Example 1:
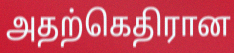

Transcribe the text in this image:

அதற்கெதிரான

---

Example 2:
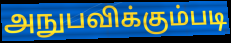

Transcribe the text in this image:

அநுபவிக்கும்படி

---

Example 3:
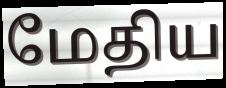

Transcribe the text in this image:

மேதிய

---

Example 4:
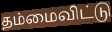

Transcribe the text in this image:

தம்மைவிட்டு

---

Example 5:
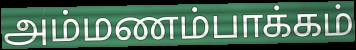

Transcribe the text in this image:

அம்மணம்பாக்கம்